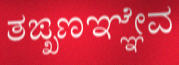
ತಙ್ಖಣಞ್ಞೇವ